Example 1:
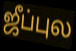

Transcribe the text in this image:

ஜீப்புல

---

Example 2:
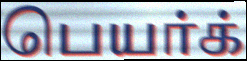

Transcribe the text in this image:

பெயர்க்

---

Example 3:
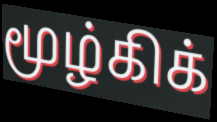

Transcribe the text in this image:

மூழ்கிக்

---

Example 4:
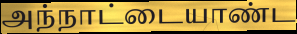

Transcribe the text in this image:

அந்நாட்டையாண்ட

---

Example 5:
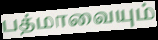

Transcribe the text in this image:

பத்மாவையும்